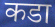
कडा